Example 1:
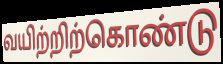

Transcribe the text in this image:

வயிற்றிற்கொண்டு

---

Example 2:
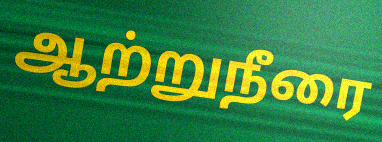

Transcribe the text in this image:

ஆற்றுநீரை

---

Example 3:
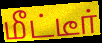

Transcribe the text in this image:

மீட்டீர்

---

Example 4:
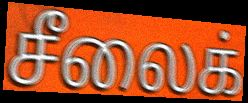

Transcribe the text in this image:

சீலைக்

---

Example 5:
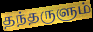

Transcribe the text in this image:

தந்தருளும்